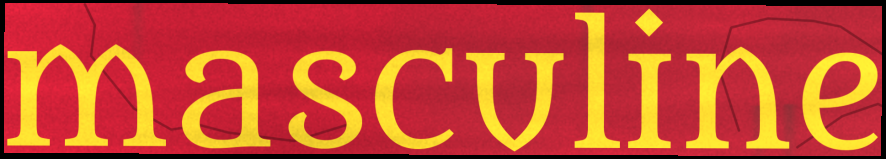
masculine